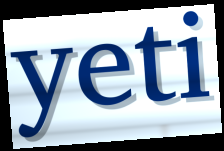
yeti